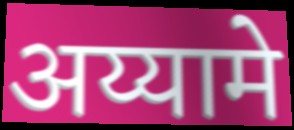
अय्यामे